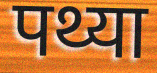
पथ्या